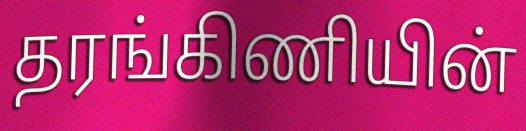
தரங்கிணியின்